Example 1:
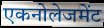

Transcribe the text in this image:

एकनोलेजमेंट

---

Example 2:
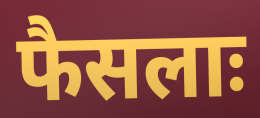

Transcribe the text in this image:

फैसलाः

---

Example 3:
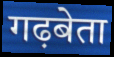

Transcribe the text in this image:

गढ़बेता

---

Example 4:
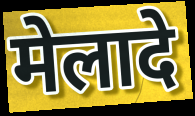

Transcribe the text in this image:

मेलादे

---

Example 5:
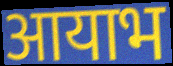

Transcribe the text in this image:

आयाभ